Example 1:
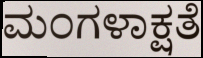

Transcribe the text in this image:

ಮಂಗಳಾಕ್ಷತೆ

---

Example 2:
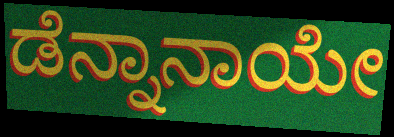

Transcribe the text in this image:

ಡೆನ್ನಾನಾಯೇ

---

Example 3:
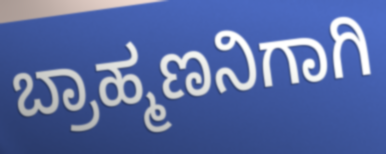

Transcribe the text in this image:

ಬ್ರಾಹ್ಮಣನಿಗಾಗಿ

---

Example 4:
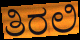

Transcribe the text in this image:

ತಿರಲಿ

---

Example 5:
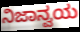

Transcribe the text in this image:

ನಿಜಾನ್ವಯ